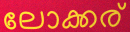
ലോക്കര്